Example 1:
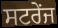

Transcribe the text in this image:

ਸਟਰੇਂਜ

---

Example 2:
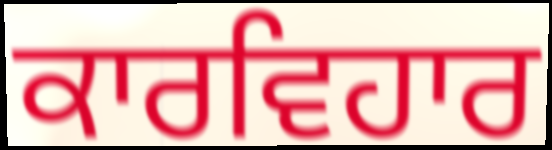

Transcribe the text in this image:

ਕਾਰਵਿਹਾਰ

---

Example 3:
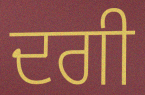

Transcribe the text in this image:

ਦਗੀ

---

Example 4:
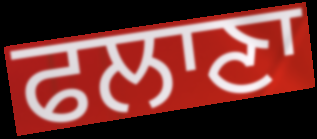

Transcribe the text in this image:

ਫਲਾਣਾ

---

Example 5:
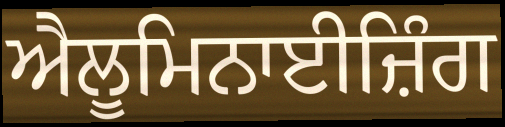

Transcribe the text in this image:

ਐਲੂਮਿਨਾਈਜ਼ਿੰਗ